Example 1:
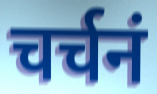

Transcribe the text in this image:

चर्चनं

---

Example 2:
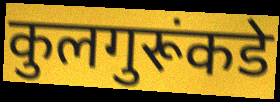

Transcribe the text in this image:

कुलगुरूंकडे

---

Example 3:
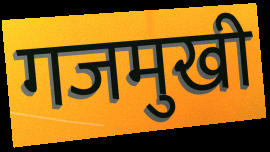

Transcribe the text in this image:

गजमुखी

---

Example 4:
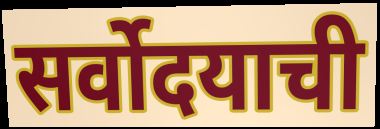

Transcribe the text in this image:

सर्वोदयाची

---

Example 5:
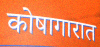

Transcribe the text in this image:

कोषागारात